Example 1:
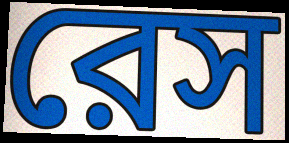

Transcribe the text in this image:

রেস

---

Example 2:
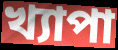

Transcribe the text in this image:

খ্যাপা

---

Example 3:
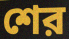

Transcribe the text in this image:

শের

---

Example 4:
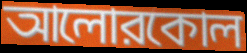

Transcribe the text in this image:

আলোরকোল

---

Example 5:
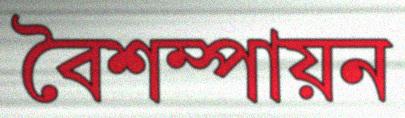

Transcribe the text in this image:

বৈশম্পায়ন